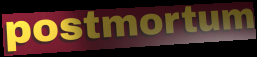
postmortum